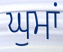
ਘੁਮਾਂ